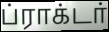
ப்ராக்டர்